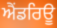
ਐਂਡਰਿਊ